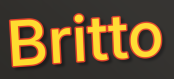
Britto